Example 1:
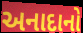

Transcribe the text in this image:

અનાદાનો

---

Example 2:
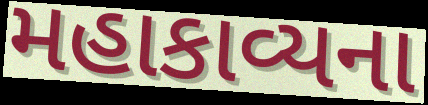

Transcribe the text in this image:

મહાકાવ્યના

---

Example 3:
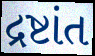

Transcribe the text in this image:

દ્રષ્ટાંત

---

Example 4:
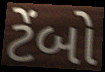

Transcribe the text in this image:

ટેંબો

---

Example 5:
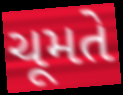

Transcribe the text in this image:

ચૂમતે